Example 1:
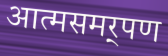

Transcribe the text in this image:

आत्मसमर्पण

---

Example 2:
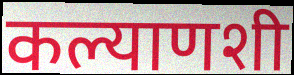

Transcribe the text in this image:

कल्याणशी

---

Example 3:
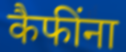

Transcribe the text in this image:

कैफींना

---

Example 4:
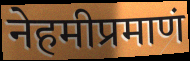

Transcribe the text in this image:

नेहमीप्रमाणं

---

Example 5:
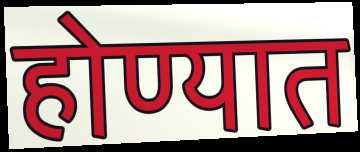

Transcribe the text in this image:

होण्यात